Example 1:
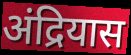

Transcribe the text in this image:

अंद्रियास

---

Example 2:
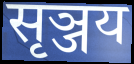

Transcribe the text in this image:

सृञ्जय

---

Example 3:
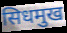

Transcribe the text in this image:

सिधमुख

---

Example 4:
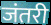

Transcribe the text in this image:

जंतरी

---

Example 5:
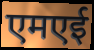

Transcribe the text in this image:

एमएई